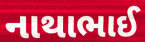
નાથાભાઈ